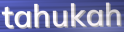
tahukah